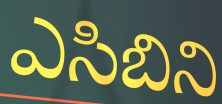
ఎసిబిని